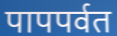
पापपर्वत